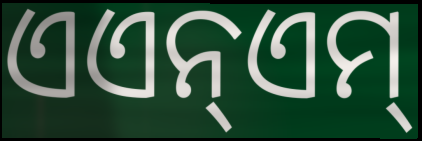
ଏଏନ୍ଏମ୍